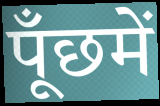
पूँछमें